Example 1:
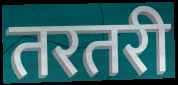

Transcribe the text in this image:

तरतरी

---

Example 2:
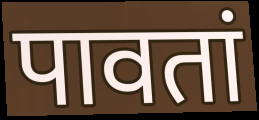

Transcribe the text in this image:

पावतां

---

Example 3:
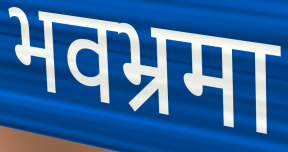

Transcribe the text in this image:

भवभ्रमा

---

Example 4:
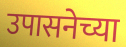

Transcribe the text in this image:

उपासनेच्या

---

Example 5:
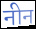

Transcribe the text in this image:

नीन